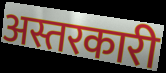
अस्तरकारी